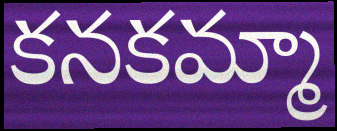
కనకమ్మా